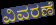
ವಿವರಣೆ